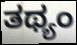
ತಥ್ಯಂ